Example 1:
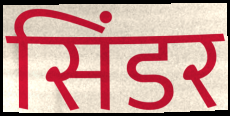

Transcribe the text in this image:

सिंडर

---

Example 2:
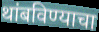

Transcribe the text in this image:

थांबविण्याचा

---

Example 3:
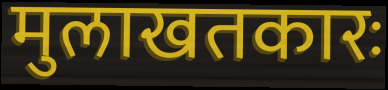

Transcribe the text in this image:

मुलाखतकारः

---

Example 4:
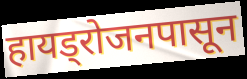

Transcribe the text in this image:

हायड्रोजनपासून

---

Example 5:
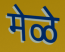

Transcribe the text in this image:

मेळे